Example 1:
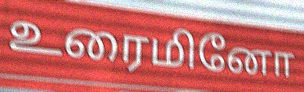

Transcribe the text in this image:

உரைமினோ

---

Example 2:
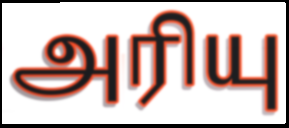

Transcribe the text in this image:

அரியு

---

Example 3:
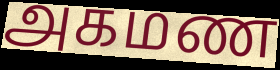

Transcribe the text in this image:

அகமண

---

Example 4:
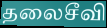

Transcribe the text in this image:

தலைசீவி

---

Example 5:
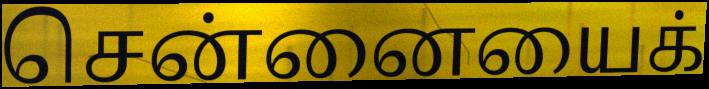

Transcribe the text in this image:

சென்னையைக்